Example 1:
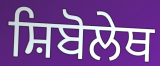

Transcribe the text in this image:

ਸ਼ਿਬੋਲੇਥ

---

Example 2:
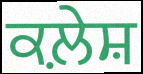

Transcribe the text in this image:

ਕਲ਼ੇਸ਼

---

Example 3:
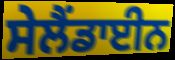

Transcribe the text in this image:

ਸੇਲੈਂਡਾਈਨ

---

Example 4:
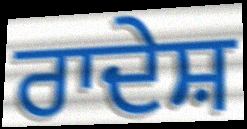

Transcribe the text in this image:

ਰਾਦੇਸ਼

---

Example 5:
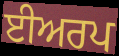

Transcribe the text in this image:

ਈਅਰਪ